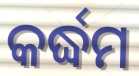
କର୍ଦ୍ଧମ